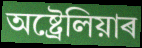
অষ্ট্ৰেলিয়াৰ